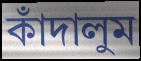
কাঁদালুম